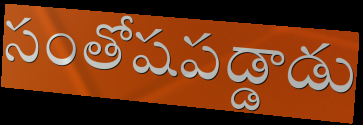
సంతోషపడ్డాడు